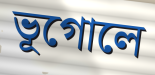
ভূগোলে